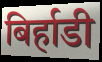
बिर्हाडी